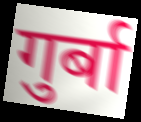
गुर्बा